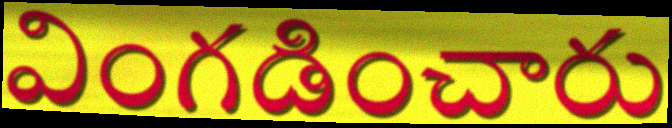
వింగడించారు